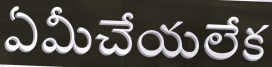
ఏమీచేయలేక